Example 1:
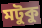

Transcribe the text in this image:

মটুকু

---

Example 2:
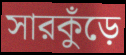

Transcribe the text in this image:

সারকুঁড়ে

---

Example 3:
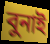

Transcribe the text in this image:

বুনাই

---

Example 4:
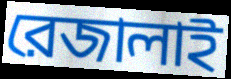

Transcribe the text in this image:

রেজালাই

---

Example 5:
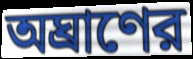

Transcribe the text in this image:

অঘ্রাণের